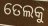
ତେଲକୁ